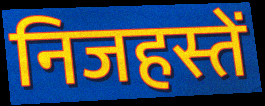
निजहस्तें